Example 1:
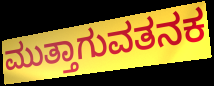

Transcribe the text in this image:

ಮುತ್ತಾಗುವತನಕ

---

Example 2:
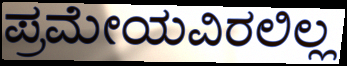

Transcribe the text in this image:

ಪ್ರಮೇಯವಿರಲಿಲ್ಲ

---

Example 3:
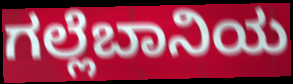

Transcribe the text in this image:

ಗಲ್ಲೆಬಾನಿಯ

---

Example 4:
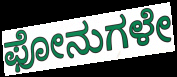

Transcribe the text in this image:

ಫೋನುಗಳೇ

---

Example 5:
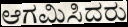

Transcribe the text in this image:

ಆಗಮಿಸಿದರು